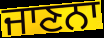
ਜਾਣਨਾ